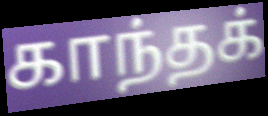
காந்தக்